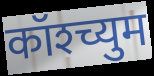
कॉश्च्युम